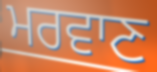
ਮਰਵਾਣ